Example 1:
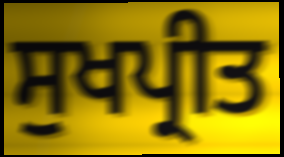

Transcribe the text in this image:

ਸੁਖਪ੍ਰੀਤ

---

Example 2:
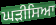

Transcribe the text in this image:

ਘੜੀਸਿਆ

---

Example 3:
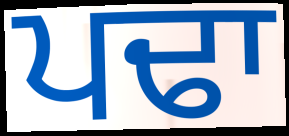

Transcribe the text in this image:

ਪਢਾ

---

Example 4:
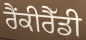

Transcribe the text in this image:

ਰੈਂਕੀਰੈੱਡੀ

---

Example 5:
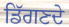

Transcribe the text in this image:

ਡਿੱਗਣਦੇ